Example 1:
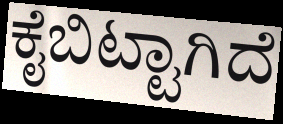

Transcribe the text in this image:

ಕೈಬಿಟ್ಟಾಗಿದೆ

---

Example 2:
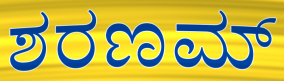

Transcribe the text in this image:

ಶರಣಮ್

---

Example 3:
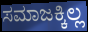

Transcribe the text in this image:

ಸಮಾಜಕ್ಕಿಲ್ಲ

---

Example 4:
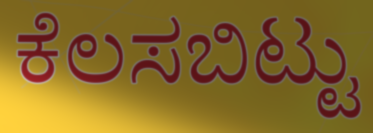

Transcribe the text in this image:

ಕೆಲಸಬಿಟ್ಟು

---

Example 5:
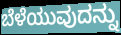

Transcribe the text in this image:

ಬೆಳೆಯುವುದನ್ನು